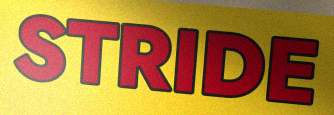
STRIDE